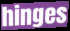
hinges